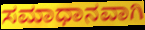
ಸಮಾಧಾನವಾಗಿ